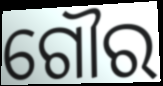
ଗୌର